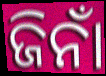
ଜିନାଁ